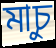
মাচু